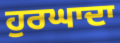
ਹੁਰਘਾਦਾ